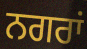
ਨਗਰਾਂ